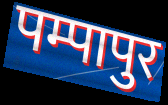
पम्पापुर